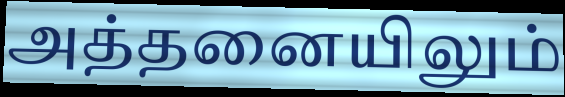
அத்தனையிலும்